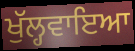
ਖੁੱਲ੍ਹਵਾਇਆ